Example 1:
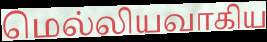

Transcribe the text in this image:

மெல்லியவாகிய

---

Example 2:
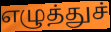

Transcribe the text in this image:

எழுத்துச்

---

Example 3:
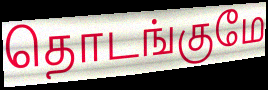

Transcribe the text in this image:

தொடங்குமே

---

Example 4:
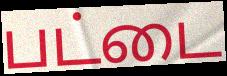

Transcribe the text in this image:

பட்டை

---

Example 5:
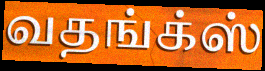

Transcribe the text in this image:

வதங்க்ஸ்